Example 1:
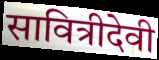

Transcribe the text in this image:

सावित्रीदेवी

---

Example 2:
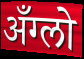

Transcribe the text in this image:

अँग्लो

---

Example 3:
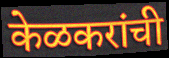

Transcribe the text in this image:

केळकरांची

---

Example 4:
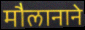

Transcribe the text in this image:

मौलानाने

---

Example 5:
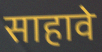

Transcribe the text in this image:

साहावे